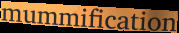
mummification